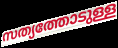
സത്യത്തോടുള്ള